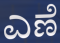
ಎಣೆ